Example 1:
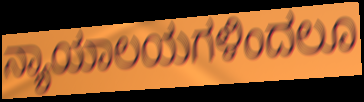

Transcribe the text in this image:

ನ್ಯಾಯಾಲಯಗಳಿಂದಲೂ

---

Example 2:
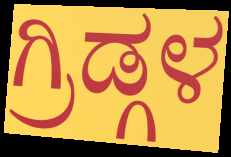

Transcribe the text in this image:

ಗ್ರಿಡ್ಗಳ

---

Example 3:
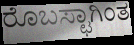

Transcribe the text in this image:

ರೊಬಸ್ಟಾಗಿಂತ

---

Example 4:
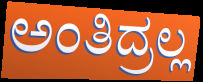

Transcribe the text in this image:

ಅಂತಿದ್ರಲ್ಲ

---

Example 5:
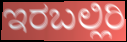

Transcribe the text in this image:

ಇರಬಲ್ಲಿರಿ